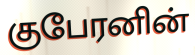
குபேரனின்